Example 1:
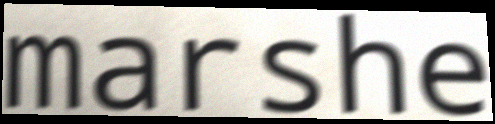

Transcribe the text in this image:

marshe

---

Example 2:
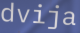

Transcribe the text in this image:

dvija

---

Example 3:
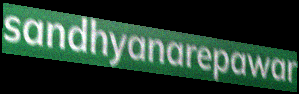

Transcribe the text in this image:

sandhyanarepawar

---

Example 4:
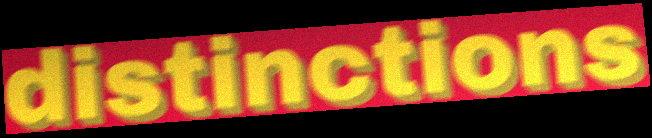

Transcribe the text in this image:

distinctions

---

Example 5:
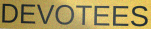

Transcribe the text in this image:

DEVOTEES